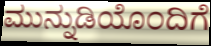
ಮುನ್ನುಡಿಯೊಂದಿಗೆ